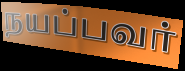
நயப்பவர்